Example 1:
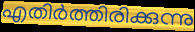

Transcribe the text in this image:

എതിർത്തിരിക്കുന്നു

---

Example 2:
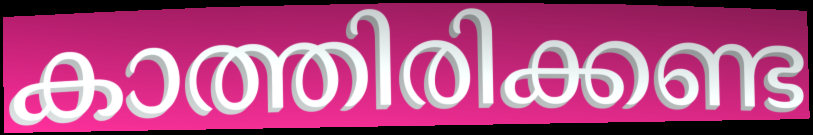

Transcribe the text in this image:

കാത്തിരിക്കണ്ട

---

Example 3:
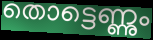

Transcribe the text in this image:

തൊട്ടെണ്ണും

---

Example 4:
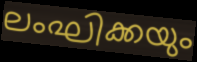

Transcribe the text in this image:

ലംഘിക്കയും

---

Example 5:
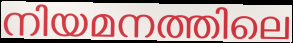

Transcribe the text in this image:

നിയമനത്തിലെ